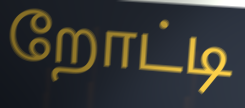
றோட்டி